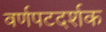
वर्णपटदर्शक